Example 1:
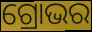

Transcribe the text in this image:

ଗ୍ରୋଭର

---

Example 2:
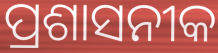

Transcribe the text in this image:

ପ୍ରଶାସନୀକ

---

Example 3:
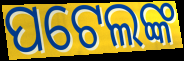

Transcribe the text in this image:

ପଟେଲଙ୍କ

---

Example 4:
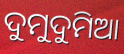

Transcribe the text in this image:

ଦୁମୁଦୁମିଆ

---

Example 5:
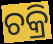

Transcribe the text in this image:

ଚକ୍ରି